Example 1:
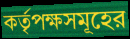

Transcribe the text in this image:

কর্তৃপক্ষসমূহের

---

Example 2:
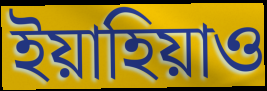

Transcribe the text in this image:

ইয়াহিয়াও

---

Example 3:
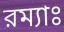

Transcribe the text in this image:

রম্যাঃ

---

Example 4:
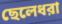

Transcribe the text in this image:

ছেলেধরা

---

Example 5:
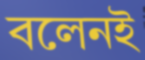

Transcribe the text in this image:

বলেনই